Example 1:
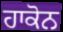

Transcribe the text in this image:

ਹਾਕੋਨ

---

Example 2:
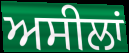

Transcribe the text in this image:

ਅਸੀਲਾਂ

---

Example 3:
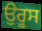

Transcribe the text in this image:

ਉਰੂਸ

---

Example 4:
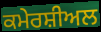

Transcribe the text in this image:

ਕਮੇਰਸ਼ੀਅਲ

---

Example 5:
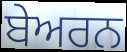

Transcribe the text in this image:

ਬੇਅਰਨ